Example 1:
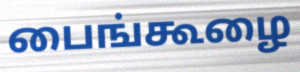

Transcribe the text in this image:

பைங்கூழை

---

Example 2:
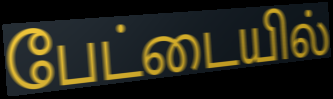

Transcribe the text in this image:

பேட்டையில்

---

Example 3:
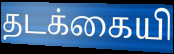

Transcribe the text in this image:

தடக்கையி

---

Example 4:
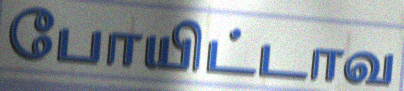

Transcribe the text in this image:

போயிட்டாவ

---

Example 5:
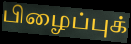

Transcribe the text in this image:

பிழைப்புக்